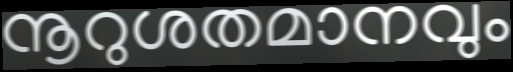
നൂറുശതമാനവും